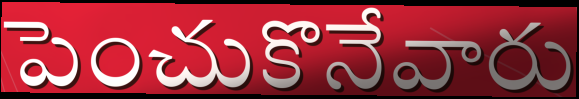
పెంచుకొనేవారు